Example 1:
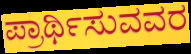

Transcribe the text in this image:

ಪ್ರಾರ್ಥಿಸುವವರ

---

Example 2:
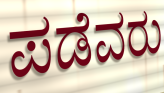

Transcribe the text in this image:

ಪಡೆವರು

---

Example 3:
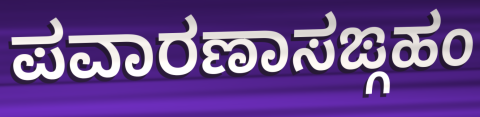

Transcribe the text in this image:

ಪವಾರಣಾಸಙ್ಗಹಂ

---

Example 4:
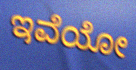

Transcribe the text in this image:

ಇವೆಯೋ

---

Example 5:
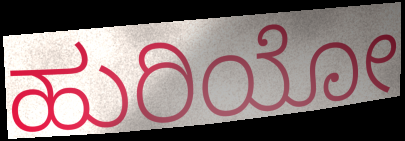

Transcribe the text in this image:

ಹುರಿಯೋ